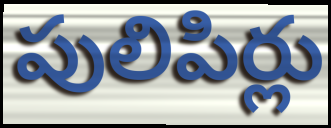
పులిపిర్లు